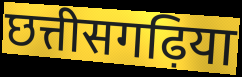
छत्तीसगढ़िया